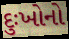
દુઃખોનો